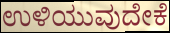
ಉಳಿಯುವುದೇಕೆ